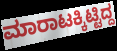
ಮಾರಾಟಕ್ಕಿಟ್ಟಿದ್ದ